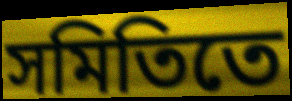
সমিতিতে